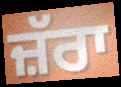
ਜ਼ੱਰਾ